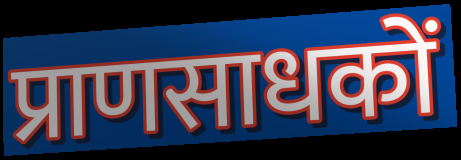
प्राणसाधकों